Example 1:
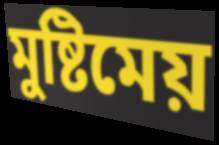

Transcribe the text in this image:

মুষ্টিমেয়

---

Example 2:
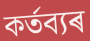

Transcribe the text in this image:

কৰ্তব্যৰ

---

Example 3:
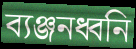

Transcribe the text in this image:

ব্যঞ্জনধ্বনি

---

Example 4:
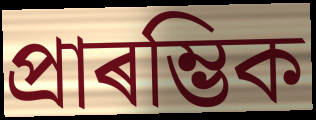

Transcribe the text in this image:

প্ৰাৰম্ভিক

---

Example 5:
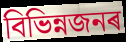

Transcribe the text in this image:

বিভিন্নজনৰ